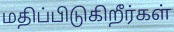
மதிப்பிடுகிறீர்கள்